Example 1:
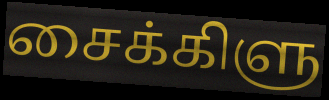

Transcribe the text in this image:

சைக்கிளு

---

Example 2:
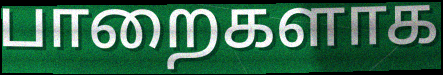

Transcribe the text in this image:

பாறைகளாக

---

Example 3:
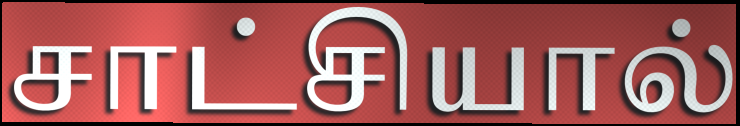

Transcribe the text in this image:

சாட்சியால்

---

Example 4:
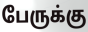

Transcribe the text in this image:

பேருக்கு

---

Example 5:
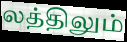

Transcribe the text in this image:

லத்திலும்